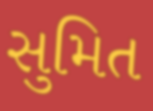
સુમિત